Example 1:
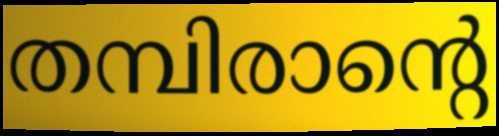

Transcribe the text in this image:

തമ്പിരാന്റെ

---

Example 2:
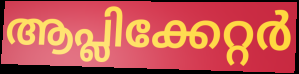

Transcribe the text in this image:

ആപ്ലിക്കേറ്റർ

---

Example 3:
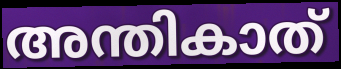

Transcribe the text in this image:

അന്തികാത്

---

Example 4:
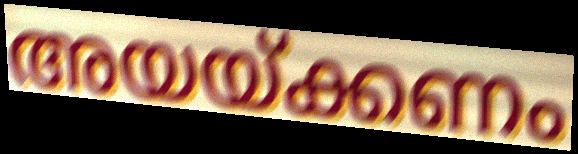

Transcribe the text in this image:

അയയ്ക്കണം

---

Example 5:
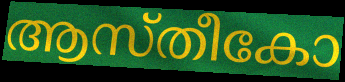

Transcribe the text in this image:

ആസ്തീകോ